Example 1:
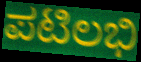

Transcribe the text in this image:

ಪಟಿಲಭಿ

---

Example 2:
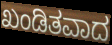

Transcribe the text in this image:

ಖಂಡಿತವಾದ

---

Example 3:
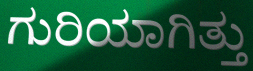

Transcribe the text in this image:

ಗುರಿಯಾಗಿತ್ತು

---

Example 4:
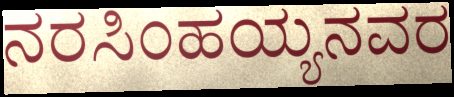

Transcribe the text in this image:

ನರಸಿಂಹಯ್ಯನವರ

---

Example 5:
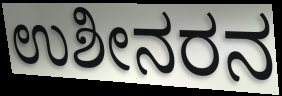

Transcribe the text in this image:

ಉಶೀನರನ